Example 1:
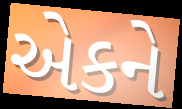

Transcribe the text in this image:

એકને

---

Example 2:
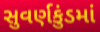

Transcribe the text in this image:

સુવર્ણકુંડમાં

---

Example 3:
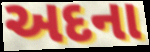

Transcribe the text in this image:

અદના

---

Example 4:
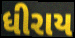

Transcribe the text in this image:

ધીરાય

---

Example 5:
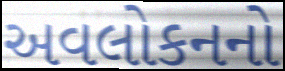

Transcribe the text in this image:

અવલોકનનો